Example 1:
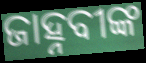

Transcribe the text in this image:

ଜାହ୍ନବୀଙ୍କ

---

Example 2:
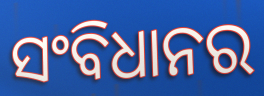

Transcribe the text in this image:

ସଂବିଧାନର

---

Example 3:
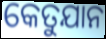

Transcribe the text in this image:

କେତୁଯାନ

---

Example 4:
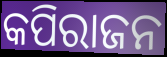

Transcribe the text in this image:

କପିରାଜନ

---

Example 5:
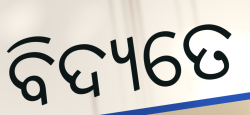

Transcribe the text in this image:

ବିଦ୍ୟତେ